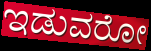
ಇಡುವರೋ